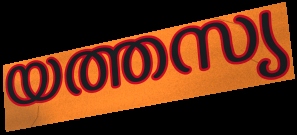
യത്തസ്യ